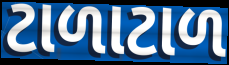
ટાળાટાળ